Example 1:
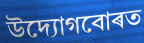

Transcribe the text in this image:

উদ্যোগবোৰত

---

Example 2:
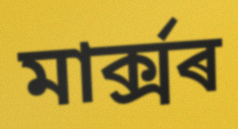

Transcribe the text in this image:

মাৰ্ক্সৰ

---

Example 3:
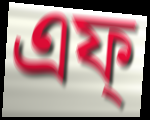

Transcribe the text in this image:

এফ্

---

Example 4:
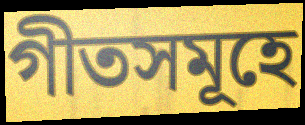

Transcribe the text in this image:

গীতসমূহে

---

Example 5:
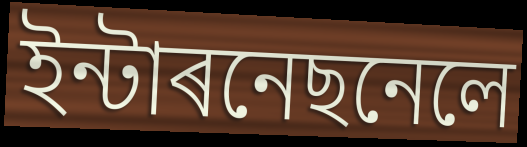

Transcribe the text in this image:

ইন্টাৰনেছনেলে